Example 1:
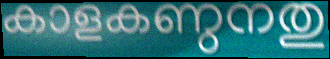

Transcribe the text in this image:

കാളകണ്ഠനതു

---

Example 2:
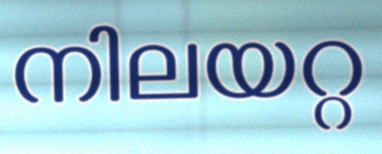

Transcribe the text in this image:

നിലയറ്റ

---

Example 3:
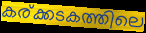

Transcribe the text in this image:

കര്ക്കടകത്തിലെ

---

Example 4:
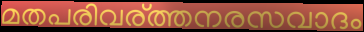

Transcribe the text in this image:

മതപരിവര്ത്തനരസവാദം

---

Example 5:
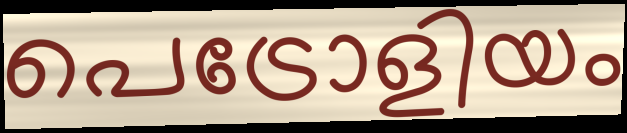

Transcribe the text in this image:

പെട്രോളിയം